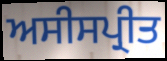
ਅਸੀਸਪ੍ਰੀਤ